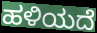
ಹಳಿಯದೆ